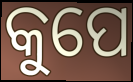
କୁପେ